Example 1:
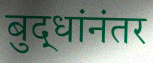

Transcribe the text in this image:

बुद्धांनंतर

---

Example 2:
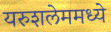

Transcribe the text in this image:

यरुशलेममध्ये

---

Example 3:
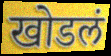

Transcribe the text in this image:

खोडलं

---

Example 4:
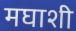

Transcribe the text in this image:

मघाशी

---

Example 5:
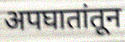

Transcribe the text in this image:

अपघातांतून